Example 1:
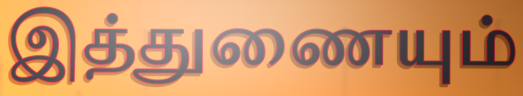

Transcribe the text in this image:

இத்துணையும்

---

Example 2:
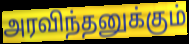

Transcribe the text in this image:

அரவிந்தனுக்கும்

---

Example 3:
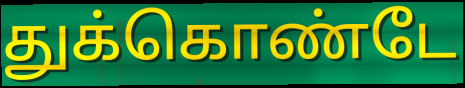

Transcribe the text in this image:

துக்கொண்டே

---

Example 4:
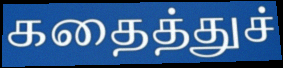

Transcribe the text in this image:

கதைத்துச்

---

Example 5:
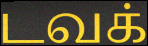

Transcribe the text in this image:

டவக்